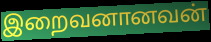
இறைவனானவன்